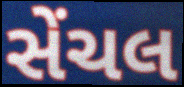
સેંચલ